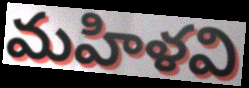
మహిళవి